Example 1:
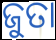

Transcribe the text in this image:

ଜୁତା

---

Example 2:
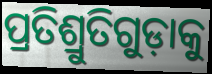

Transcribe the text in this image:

ପ୍ରତିଶ୍ରୁତିଗୁଡ଼ାକୁ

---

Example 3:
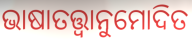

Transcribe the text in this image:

ଭାଷାତତ୍ତ୍ୱାନୁମୋଦିତ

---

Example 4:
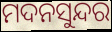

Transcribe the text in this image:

ମଦନସୁନ୍ଦର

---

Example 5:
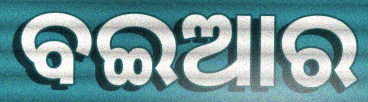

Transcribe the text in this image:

ବଇଆର